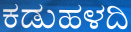
ಕಡುಹಳದಿ